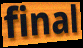
final